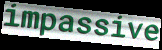
impassive